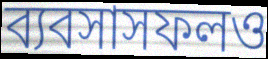
ব্যবসাসফলও